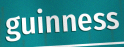
guinness